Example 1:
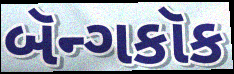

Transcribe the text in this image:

બૅન્ગકૉક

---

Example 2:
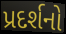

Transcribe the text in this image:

પ્રદર્શનો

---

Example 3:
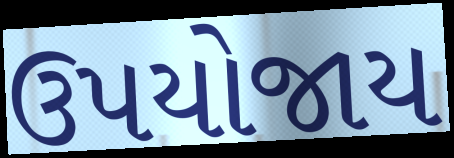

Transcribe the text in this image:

ઉપયોજાય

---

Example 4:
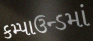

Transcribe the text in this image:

કમ્પાઉન્ડમાં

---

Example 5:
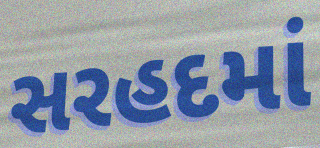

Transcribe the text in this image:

સરહદમાં